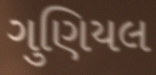
ગુણિયલ